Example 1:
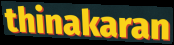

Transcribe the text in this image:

thinakaran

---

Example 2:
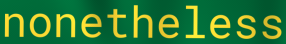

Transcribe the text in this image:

nonetheless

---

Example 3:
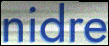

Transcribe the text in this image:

nidre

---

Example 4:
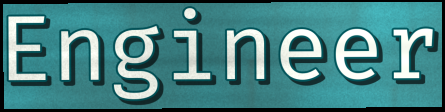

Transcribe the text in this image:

Engineer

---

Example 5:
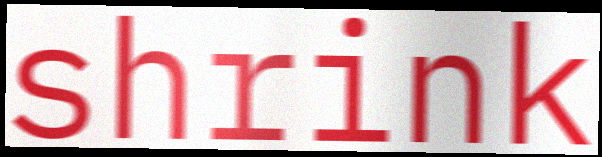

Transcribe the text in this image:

shrink